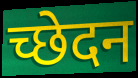
च्छेदन